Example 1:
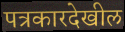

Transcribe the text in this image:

पत्रकारदेखील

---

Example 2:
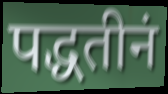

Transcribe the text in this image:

पद्धतीनं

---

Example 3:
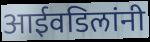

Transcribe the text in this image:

आईवडिलांनी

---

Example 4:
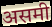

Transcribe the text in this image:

असमी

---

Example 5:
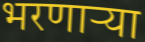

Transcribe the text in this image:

भरणाऱ्या